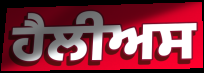
ਹੈਲੀਅਸ